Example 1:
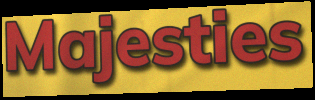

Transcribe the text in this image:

Majesties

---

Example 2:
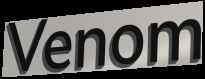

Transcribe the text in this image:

Venom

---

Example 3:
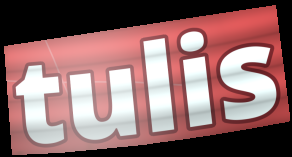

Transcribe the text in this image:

tulis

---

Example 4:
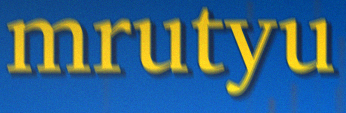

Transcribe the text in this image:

mrutyu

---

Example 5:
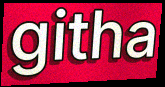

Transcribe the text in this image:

githa